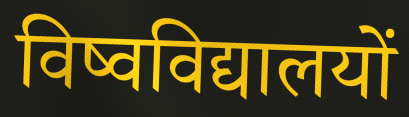
विष्वविद्यालयों